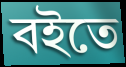
বইতে